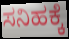
ಸನಿಹಕ್ಕೆ